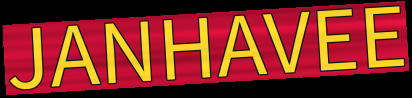
JANHAVEE